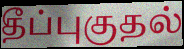
தீப்புகுதல்